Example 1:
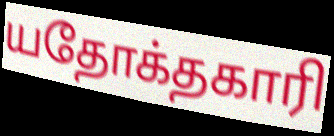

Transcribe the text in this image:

யதோக்தகாரி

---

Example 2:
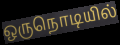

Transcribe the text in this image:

ஒருநொடியில்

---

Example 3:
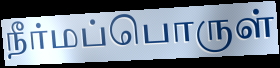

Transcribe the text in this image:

நீர்மப்பொருள்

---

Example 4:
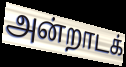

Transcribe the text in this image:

அன்றாடக்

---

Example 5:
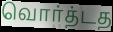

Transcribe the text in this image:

வொர்த்டத